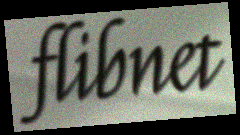
flibnet